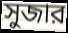
সুজার